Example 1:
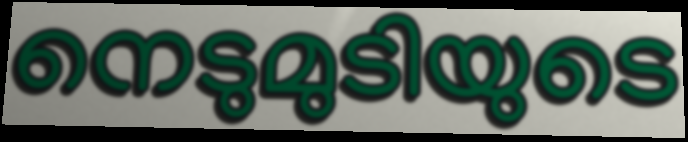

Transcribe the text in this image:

നെടുമുടിയുടെ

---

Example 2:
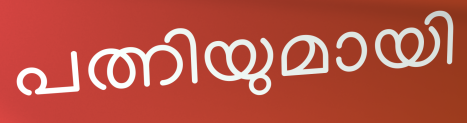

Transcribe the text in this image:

പത്നിയുമായി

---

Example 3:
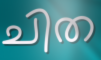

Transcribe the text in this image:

ചിത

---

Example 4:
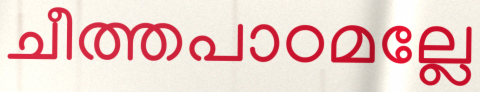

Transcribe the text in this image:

ചീത്തപാഠമല്ലേ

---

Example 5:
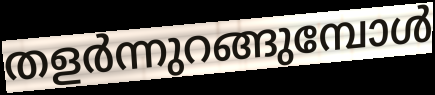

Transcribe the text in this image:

തളർന്നുറങ്ങുമ്പോൾ